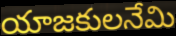
యాజకులనేమి